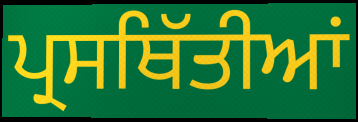
ਪ੍ਰਸਥਿੱਤੀਆਂ